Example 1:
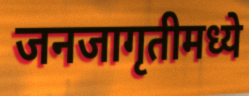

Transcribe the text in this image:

जनजागृतीमध्ये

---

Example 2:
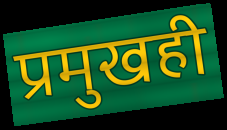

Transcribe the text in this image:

प्रमुखही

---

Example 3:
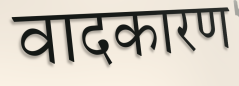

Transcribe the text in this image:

वादकारण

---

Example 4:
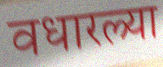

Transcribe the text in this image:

वधारल्या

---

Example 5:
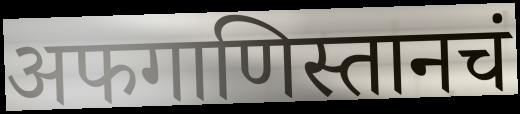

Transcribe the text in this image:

अफगाणिस्तानचं